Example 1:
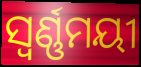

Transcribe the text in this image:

ସ୍ୱର୍ଣ୍ଣମୟୀ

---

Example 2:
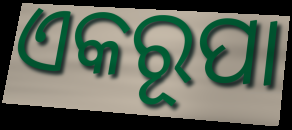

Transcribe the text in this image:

ଏକରୂପା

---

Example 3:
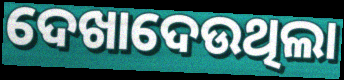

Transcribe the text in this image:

ଦେଖାଦେଉଥିଲା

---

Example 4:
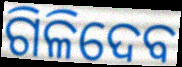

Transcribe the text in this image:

ଗିଳିଦେବ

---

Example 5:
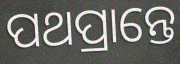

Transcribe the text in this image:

ପଥପ୍ରାନ୍ତେ